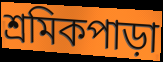
শ্রমিকপাড়া